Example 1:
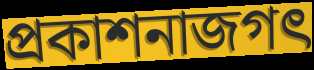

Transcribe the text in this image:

প্রকাশনাজগৎ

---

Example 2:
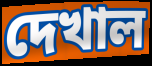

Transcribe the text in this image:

দেখাল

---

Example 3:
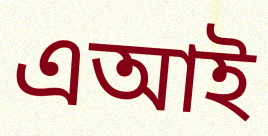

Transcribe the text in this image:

এআই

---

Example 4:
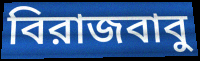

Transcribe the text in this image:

বিরাজবাবু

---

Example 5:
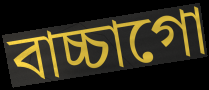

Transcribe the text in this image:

বাচ্চাগো